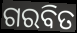
ଗରବିତ